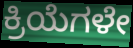
ಕ್ರಿಯೆಗಳೇ